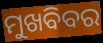
ମୁଖବିବର